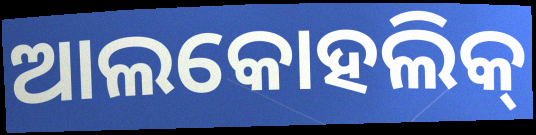
ଆଲକୋହଲିକ୍